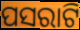
ପସରାଟି